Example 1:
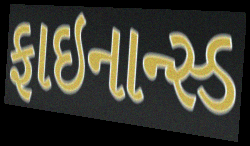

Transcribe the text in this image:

ફાઇનાન્સ્ડ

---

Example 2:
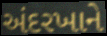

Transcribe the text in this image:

અંદરખાને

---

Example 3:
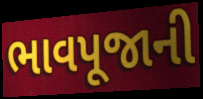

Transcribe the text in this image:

ભાવપૂજાની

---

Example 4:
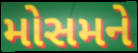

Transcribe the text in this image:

મોસમને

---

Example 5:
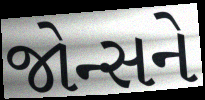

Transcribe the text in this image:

જોન્સને